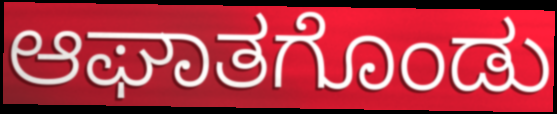
ಆಘಾತಗೊಂಡು